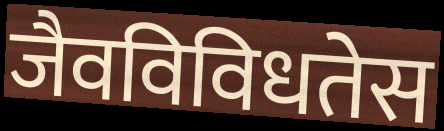
जैवविविधतेस